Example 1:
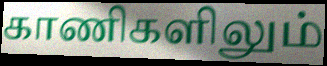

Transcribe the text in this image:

காணிகளிலும்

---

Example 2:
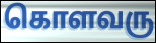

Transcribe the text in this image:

கொளவரு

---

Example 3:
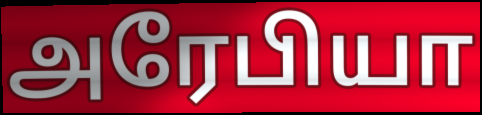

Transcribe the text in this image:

அரேபியா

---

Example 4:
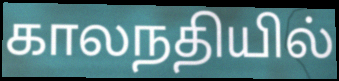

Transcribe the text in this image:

காலநதியில்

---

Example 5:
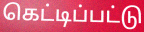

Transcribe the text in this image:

கெட்டிப்பட்டு